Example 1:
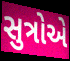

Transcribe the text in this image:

સુત્રોએ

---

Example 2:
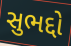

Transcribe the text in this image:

સુભદ્દો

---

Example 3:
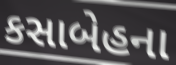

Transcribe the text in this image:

કસાબેહના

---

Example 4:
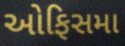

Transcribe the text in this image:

ઓફિસમા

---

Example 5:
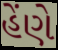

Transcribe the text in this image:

હેંણે